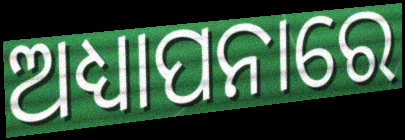
ଅଧ୍ୟାପନାରେ